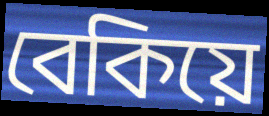
বেকিয়ে